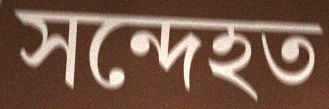
সন্দেহত